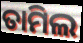
ତାମିଲ